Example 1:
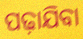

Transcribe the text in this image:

ପଢ଼ାଯିବା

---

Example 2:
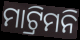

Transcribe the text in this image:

ମାଟ୍ରିମନି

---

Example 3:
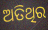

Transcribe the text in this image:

ଅତିଥିର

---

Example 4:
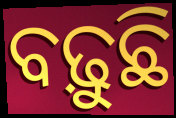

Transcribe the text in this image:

ବଢ଼ୁଛି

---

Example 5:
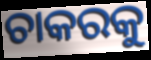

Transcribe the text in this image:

ଚାକରକୁ